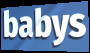
babys